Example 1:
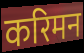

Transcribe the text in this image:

करिमन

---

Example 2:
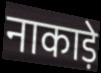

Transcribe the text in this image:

नाकाड़े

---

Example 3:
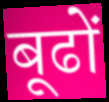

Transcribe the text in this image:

बूढों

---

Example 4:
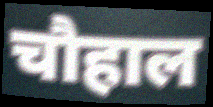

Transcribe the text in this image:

चौहाल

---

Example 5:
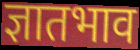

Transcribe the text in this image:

ज्ञातभाव